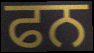
ਫਨ